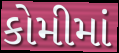
કોમીમાં